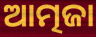
ଆତ୍ମଜା